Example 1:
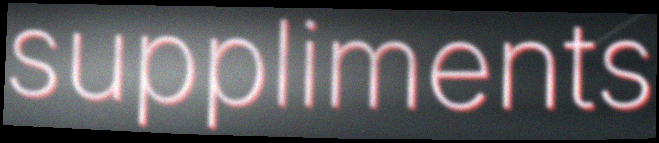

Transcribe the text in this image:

suppliments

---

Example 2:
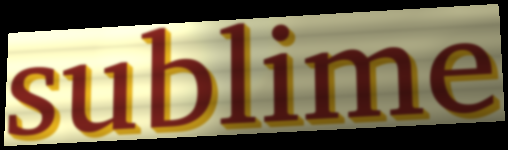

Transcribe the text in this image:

sublime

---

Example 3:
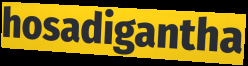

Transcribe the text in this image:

hosadigantha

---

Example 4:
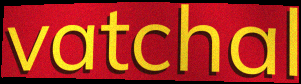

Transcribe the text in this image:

vatchal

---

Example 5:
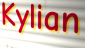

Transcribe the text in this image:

Kylian